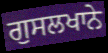
ਗੁਸਲਖਾਨੇ